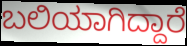
ಬಲಿಯಾಗಿದ್ದಾರೆ